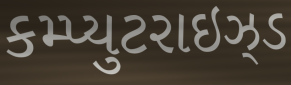
કમ્પ્યુટરાઇઝ્ડ